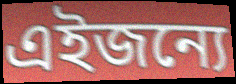
এইজন্যে